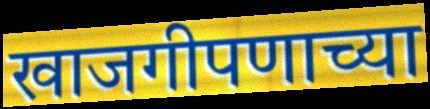
खाजगीपणाच्या